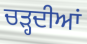
ਚੜ੍ਹਦੀਆਂ